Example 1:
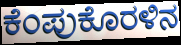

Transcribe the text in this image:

ಕೆಂಪುಕೊರಳಿನ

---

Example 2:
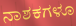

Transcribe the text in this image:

ನಾಶಕಗಳೂ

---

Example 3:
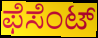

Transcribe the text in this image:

ಫೆಸೆಂಟ್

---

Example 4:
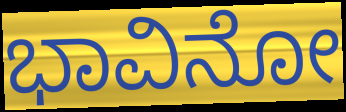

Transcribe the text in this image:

ಭಾವಿನೋ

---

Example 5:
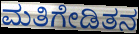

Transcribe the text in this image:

ಮತಿಗೇಡಿತನ